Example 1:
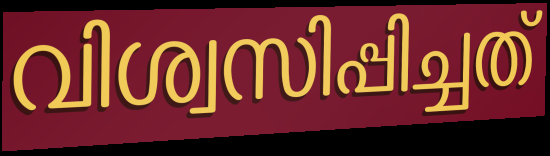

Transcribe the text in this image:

വിശ്വസിപ്പിച്ചത്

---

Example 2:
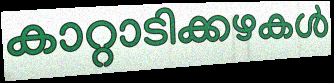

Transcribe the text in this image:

കാറ്റാടിക്കഴകൾ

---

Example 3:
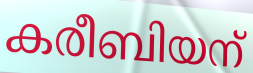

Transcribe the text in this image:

കരീബിയന്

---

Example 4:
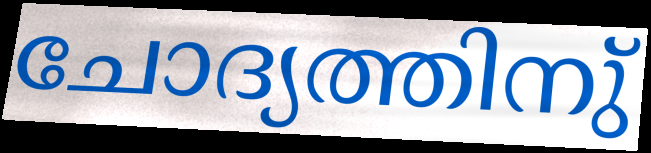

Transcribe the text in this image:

ചോദ്യത്തിനു്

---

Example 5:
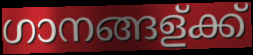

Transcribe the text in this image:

ഗാനങ്ങള്ക്ക്